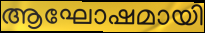
ആഘോഷമായി